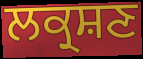
ਲਕ੍ਰਸ਼ਣ